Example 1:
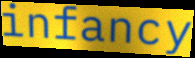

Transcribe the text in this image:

infancy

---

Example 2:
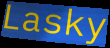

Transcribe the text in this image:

Lasky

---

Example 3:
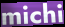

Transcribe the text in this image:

michi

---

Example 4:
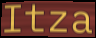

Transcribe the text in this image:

Itza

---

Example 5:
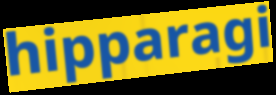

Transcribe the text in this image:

hipparagi